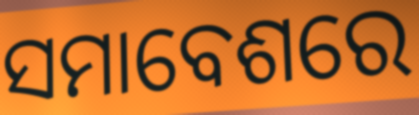
ସମାବେଶରେ